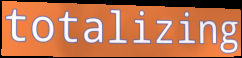
totalizing